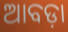
ଆବଡ଼ା